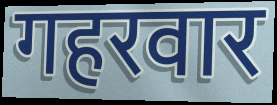
गहरवार